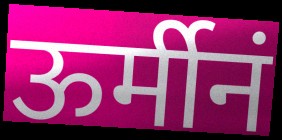
ऊर्मीनं